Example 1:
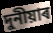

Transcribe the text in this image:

দুনীয়াৰ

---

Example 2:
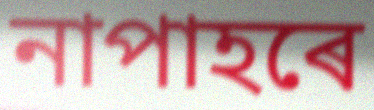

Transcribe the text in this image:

নাপাহৰে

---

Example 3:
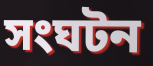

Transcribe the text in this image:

সংঘটন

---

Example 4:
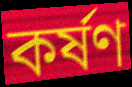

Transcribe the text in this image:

কৰ্ষণ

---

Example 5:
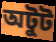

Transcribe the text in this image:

অটুট